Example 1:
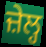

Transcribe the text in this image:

ਜ਼ੇਲ੍ਹ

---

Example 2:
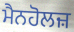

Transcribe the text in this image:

ਮੈਨਹੋਲਜ਼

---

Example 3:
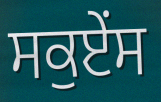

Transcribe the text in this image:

ਸਕੁਏਂਸ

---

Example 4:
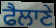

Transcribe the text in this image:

ਫੈਲਾਣੇ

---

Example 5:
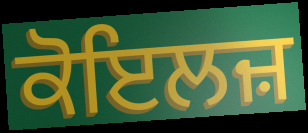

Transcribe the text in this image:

ਕੋਇਲਜ਼